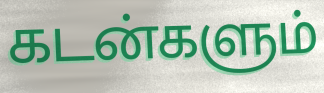
கடன்களும்